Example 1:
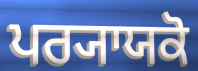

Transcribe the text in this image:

ਪਰ੍ਯਾਯਕੋ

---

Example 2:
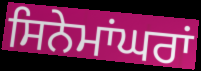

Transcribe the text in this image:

ਸਿਨੇਮਾਂਘਰਾਂ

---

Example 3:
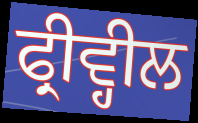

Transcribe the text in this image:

ਫ੍ਰੀਵ੍ਹੀਲ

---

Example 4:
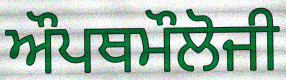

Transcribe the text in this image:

ਔਪਥਮੌਲੋਜੀ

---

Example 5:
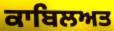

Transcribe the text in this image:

ਕਾਬਿਲਅਤ